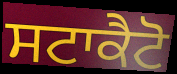
ਸਟਾਕੈਟੋ